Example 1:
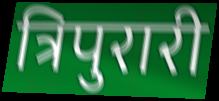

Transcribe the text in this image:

त्रिपुरारी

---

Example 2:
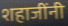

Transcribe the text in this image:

शहाजींनी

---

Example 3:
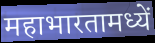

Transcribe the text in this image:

महाभारतामध्यें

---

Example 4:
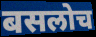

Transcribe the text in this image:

बसलोच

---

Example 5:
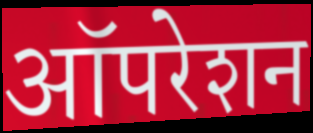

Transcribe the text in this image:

ऑपरेशन